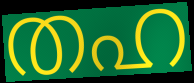
തഹ